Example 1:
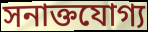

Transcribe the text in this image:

সনাক্তযোগ্য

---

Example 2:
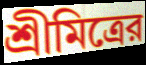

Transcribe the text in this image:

শ্রীমিত্রের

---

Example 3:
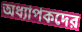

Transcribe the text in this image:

অধ্যাপকদের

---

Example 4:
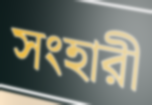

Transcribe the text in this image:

সংহারী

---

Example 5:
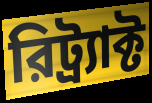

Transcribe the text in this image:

রিট্র্যাক্ট